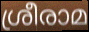
ശ്രീരാമ